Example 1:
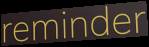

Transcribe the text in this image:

reminder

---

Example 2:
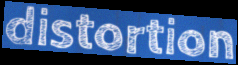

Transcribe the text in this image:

distortion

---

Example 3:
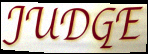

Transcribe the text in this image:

JUDGE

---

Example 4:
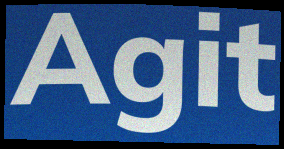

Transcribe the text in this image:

Agit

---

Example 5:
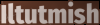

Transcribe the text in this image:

Iltutmish